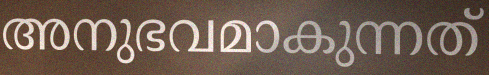
അനുഭവമാകുന്നത്